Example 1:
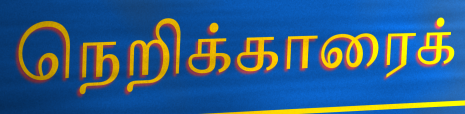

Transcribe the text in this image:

நெறிக்காரைக்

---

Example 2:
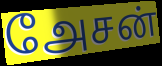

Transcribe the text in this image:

அேசன்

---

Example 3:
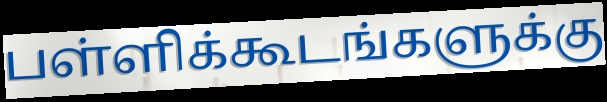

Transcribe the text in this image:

பள்ளிக்கூடங்களுக்கு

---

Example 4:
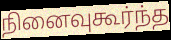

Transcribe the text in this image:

நினைவுகூர்ந்த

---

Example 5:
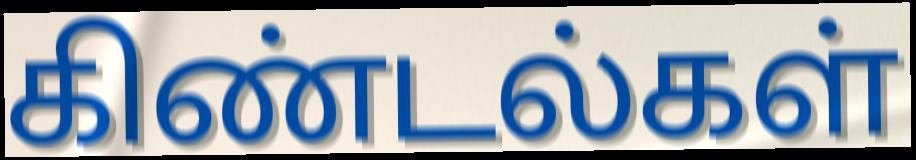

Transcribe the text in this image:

கிண்டல்கள்